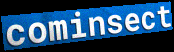
cominsect